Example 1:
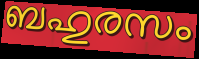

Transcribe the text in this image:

ബഹുരസം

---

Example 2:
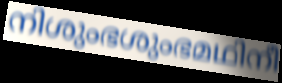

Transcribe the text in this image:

നിശുംഭശുംഭമഥിനീ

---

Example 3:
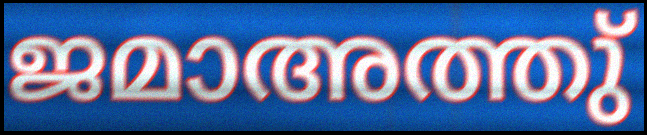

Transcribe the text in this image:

ജമാഅത്തു്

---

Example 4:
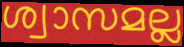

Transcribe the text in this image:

ശ്വാസമല്ല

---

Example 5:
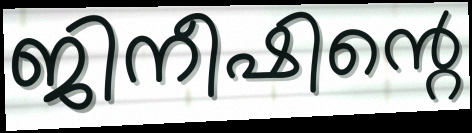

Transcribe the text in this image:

ജിനീഷിന്റെ